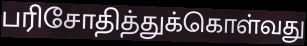
பரிசோதித்துக்கொள்வது